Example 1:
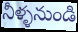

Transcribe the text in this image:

నీళ్ళనుండి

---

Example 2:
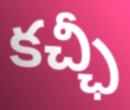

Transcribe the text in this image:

కచ్ఛీ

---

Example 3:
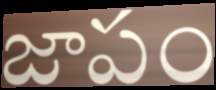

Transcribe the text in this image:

జాపం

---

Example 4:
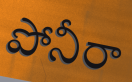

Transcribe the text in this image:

పోనీరా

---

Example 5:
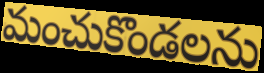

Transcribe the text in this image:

మంచుకొండలను